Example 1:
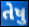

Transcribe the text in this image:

તેષુ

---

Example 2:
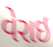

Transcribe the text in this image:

વેરાઇ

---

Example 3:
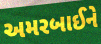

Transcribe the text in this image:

અમરબાઈને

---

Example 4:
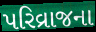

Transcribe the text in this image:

પરિવ્રાજના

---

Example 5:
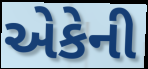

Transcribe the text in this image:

એકેની